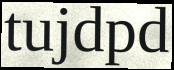
tujdpd